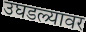
उघडल्यावर